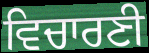
ਵਿਚਾਰਣੀ